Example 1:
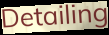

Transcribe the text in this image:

Detailing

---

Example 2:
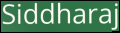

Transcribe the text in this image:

Siddharaj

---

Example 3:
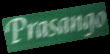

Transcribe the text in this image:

Prasango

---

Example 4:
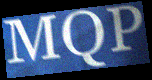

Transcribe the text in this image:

MQP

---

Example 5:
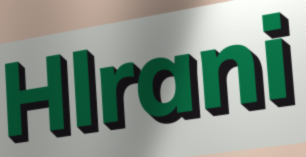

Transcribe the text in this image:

HIrani